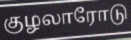
குழலாரோடு